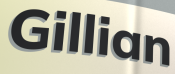
Gillian